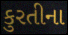
કુરતીના